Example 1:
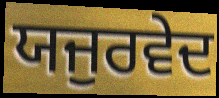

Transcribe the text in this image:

ਯਜੁਰਵੇਦ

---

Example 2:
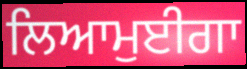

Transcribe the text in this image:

ਲਿਆਮੁਈਗਾ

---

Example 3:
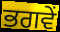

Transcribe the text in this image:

ਭਗਵੇਂ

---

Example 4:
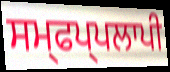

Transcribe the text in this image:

ਸਮ੍ਫਪ੍ਪਲਾਪੀ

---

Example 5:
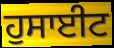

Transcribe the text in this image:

ਹੁਸਾਈਟ